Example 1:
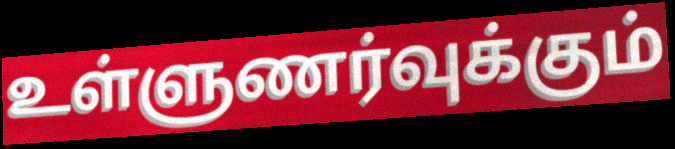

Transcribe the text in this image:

உள்ளுணர்வுக்கும்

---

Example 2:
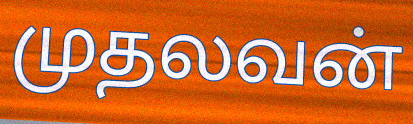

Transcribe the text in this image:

முதலவன்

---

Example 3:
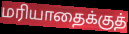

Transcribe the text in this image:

மரியாதைக்குத்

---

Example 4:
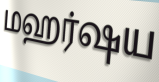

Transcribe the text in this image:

மஹர்ஷய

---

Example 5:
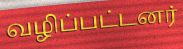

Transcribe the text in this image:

வழிப்பட்டனர்